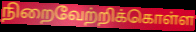
நிறைவேற்றிக்கொள்ள